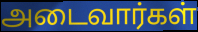
அடைவார்கள்